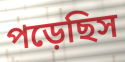
পড়েছিস